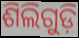
ଶିଲିଗୁଡ଼ି